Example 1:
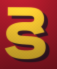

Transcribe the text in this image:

కె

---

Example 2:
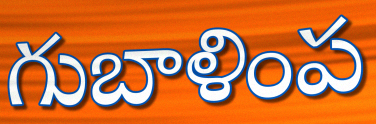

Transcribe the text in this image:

గుబాళింప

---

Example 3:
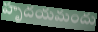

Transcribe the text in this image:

హృదయమందు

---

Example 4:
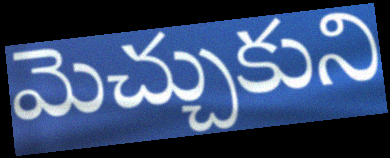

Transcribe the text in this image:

మెచ్చుకుని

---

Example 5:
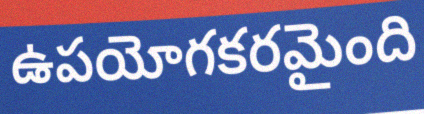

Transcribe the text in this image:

ఉపయోగకరమైంది